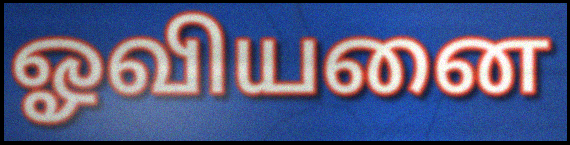
ஓவியனை